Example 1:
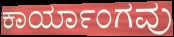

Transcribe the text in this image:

ಕಾರ್ಯಾಂಗವು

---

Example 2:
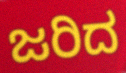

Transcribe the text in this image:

ಜರಿದ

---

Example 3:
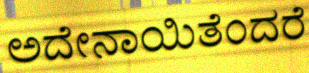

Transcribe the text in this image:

ಅದೇನಾಯಿತೆಂದರೆ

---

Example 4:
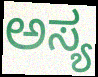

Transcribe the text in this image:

ಅಸ್ಯ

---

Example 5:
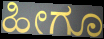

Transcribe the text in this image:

ಹೀಗೂ